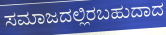
ಸಮಾಜದಲ್ಲಿರಬಹುದಾದ